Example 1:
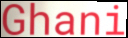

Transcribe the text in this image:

Ghani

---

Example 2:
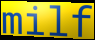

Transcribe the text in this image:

milf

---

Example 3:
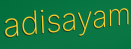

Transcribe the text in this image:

adisayam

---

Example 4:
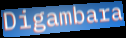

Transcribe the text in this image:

Digambara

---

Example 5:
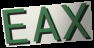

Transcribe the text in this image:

EAX